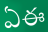
ఏఈ